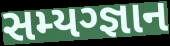
સમ્યગ્જ્ઞાન